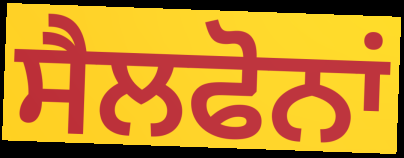
ਸੈਲਫੋਨਾਂ